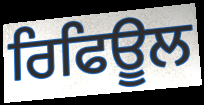
ਰਿਫਿਊਲ